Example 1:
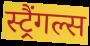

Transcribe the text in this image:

स्ट्रैंगल्स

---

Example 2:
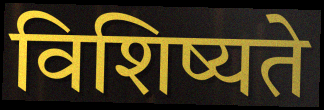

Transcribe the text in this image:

विशिष्यते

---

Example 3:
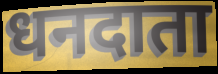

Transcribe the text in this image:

धनदाता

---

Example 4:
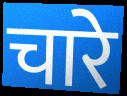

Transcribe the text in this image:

चारे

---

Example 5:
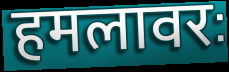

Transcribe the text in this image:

हमलावरः